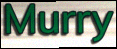
Murry